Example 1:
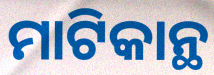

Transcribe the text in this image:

ମାଟିକାନ୍ଥ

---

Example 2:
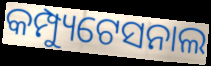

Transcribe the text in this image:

କମ୍ପ୍ୟୁଟେସନାଲ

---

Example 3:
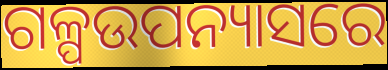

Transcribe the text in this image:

ଗଳ୍ପଉପନ୍ୟାସରେ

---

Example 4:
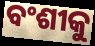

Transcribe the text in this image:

ବଂଶୀକୁ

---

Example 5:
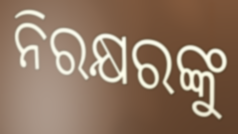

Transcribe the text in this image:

ନିରକ୍ଷରଙ୍କୁ